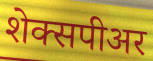
शेक्सपीअर